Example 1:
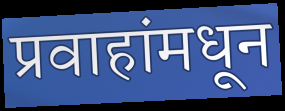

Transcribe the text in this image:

प्रवाहांमधून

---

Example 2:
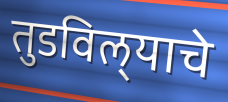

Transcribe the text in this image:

तुडविल्याचे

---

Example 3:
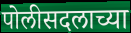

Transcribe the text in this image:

पोलीसदलाच्या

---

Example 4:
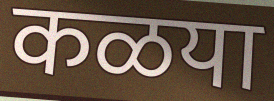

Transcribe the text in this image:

कळया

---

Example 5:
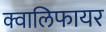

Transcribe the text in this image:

क्वालिफायर